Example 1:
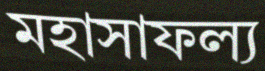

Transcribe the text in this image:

মহাসাফল্য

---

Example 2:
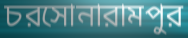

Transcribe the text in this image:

চরসোনারামপুর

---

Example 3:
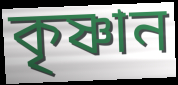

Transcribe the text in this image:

কৃষ্ণান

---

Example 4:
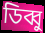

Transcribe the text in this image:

ডিব্বু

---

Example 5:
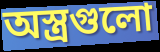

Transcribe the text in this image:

অস্ত্রগুলো